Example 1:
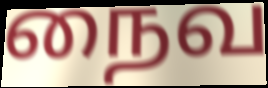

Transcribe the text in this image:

நைவ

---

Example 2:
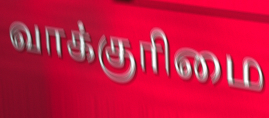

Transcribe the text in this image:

வாக்குரிமை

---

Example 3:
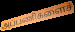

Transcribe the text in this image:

அப்பணிகளைச்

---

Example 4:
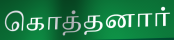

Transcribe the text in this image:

கொத்தனார்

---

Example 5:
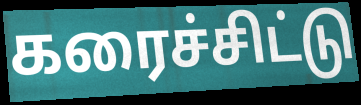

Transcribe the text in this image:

கரைச்சிட்டு